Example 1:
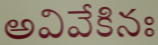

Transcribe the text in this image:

అవివేకినః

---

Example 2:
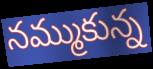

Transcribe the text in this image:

నమ్ముకున్న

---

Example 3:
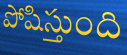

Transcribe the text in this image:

పోషిస్తుంది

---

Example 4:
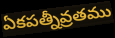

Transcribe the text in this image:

ఏకపత్నీవ్రతము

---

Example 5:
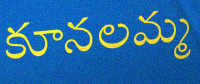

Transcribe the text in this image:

కూనలమ్మ